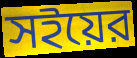
সইয়ের